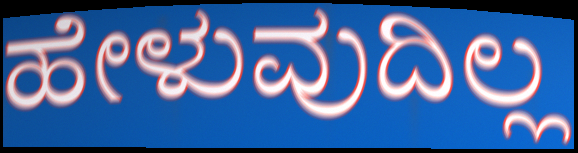
ಹೇಳುವುದಿಲ್ಲ